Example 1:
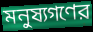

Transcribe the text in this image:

মনুষ্যগণের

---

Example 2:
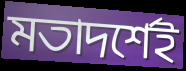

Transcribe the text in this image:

মতাদর্শেই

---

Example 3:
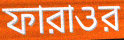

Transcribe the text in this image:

ফারাওর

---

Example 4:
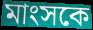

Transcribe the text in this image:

মাংসকে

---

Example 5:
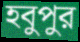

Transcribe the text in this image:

হবুপুর